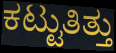
ಕಟ್ಟುತಿತ್ತು